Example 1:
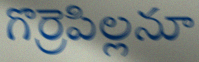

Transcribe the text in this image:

గొర్రెపిల్లనూ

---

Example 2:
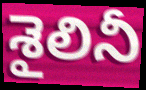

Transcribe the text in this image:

శైలినీ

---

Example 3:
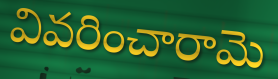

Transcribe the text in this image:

వివరించారామె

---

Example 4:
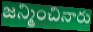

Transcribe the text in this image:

జన్మించినారు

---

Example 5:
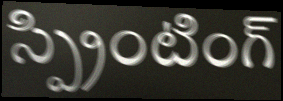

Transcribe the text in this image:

స్ప్రింటింగ్